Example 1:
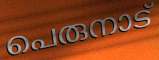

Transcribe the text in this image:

പെരുനാട്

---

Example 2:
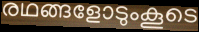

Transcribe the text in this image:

രഥങ്ങളോടുംകൂടെ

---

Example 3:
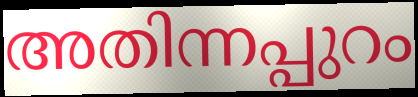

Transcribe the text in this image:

അതിന്നപ്പുറം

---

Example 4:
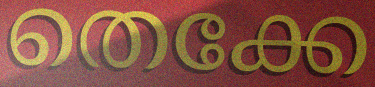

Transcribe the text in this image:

തെക്കേ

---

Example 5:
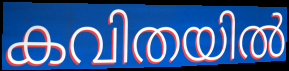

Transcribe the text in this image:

കവിതയിൽ